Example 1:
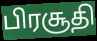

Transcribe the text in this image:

பிரசூதி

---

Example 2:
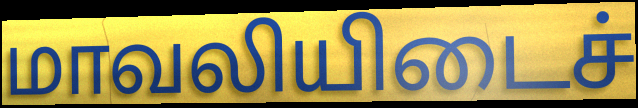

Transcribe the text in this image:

மாவலியிடைச்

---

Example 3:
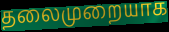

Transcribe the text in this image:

தலைமுறையாக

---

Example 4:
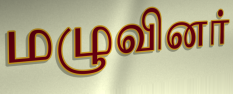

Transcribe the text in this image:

மழுவினர்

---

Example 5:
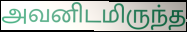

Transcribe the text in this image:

அவனிடமிருந்த